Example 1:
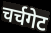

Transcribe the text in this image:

चर्चगेट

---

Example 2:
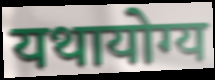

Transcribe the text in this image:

यथायोग्य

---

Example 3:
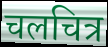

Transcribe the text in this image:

चलचित्र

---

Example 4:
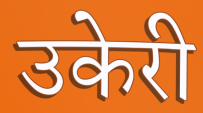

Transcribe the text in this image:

उकेरी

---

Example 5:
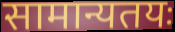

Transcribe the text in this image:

सामान्यतयः